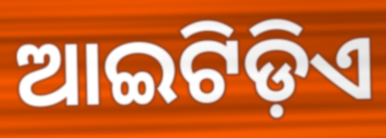
ଆଇଟିଡ଼ିଏ